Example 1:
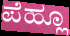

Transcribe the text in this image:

ಪೆಹ್ಲೂ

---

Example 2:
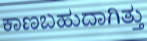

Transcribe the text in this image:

ಕಾಣಬಹುದಾಗಿತ್ತು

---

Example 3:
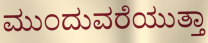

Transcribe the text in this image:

ಮುಂದುವರೆಯುತ್ತಾ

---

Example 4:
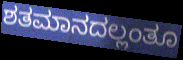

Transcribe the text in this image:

ಶತಮಾನದಲ್ಲಂತೂ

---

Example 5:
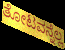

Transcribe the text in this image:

ತೋಟವನ್ನೆಲ್ಲ